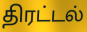
திரட்டல்